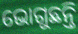
ଭୋଗୁଛନ୍ତି